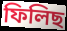
ফিলিছ